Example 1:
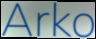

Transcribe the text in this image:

Arko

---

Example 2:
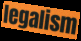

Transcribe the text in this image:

legalism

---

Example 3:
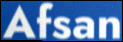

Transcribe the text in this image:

Afsan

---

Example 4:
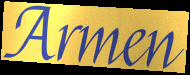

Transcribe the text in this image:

Armen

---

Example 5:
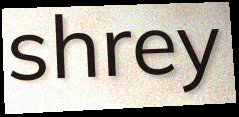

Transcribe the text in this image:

shrey